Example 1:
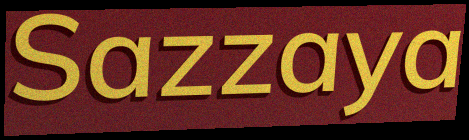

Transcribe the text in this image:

Sazzaya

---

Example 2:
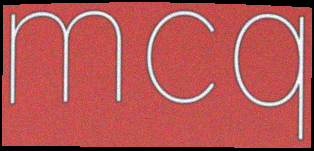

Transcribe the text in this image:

mcq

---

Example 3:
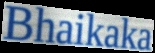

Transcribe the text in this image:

Bhaikaka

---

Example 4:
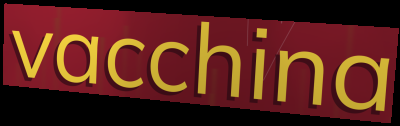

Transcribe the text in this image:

vacchina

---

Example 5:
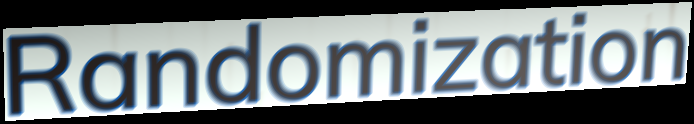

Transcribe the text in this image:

Randomization